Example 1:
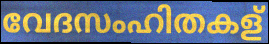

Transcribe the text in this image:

വേദസംഹിതകള്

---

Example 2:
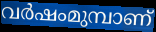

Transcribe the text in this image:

വർഷംമുമ്പാണ്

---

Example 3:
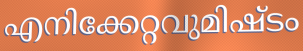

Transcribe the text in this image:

എനിക്കേറ്റവുമിഷ്ടം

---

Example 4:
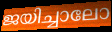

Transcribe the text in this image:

ജയിച്ചാലോ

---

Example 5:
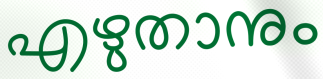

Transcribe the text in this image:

എഴുതാനും